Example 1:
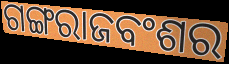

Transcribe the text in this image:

ଗଙ୍ଗରାଜବଂଶର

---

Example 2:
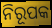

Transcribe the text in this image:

ନିରୂପକ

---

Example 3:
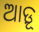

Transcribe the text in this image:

ଆଡ଼ୂ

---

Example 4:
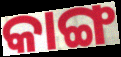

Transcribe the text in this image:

କାଙ୍ଗ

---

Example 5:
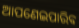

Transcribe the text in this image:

ଆପଣେଇପାରିବ